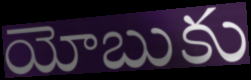
యోబుకు